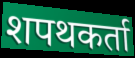
शपथकर्ता